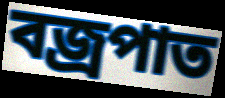
বজ্ৰপাত